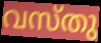
വസ്തു